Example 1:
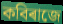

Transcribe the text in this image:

কবিৰাজে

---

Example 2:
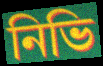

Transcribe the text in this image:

নিভি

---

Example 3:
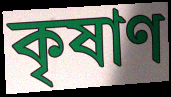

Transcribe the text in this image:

কৃষাণ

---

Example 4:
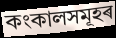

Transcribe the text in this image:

কংকালসমূহৰ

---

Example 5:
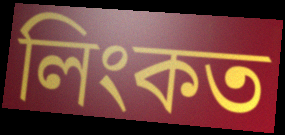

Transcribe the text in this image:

লিংকত